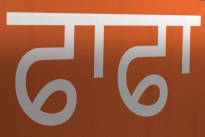
ਫਾਫਾ